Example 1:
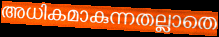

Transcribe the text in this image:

അധികമാകുന്നതല്ലാതെ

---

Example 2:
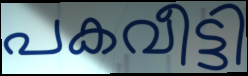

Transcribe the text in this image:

പകവീട്ടി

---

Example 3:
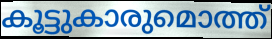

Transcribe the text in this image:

കൂട്ടുകാരുമൊത്ത്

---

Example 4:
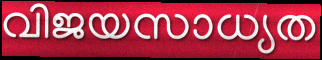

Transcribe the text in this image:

വിജയസാധ്യത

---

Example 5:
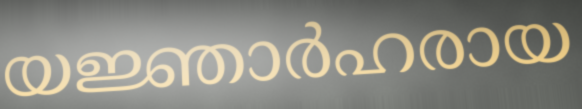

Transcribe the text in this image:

യജ്ഞാർഹരായ